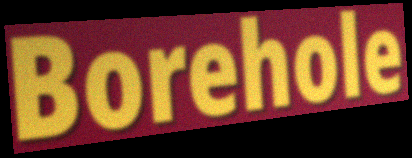
Borehole